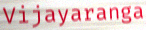
Vijayaranga